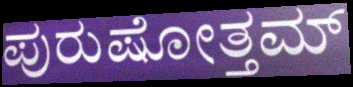
ಪುರುಷೋತ್ತಮ್